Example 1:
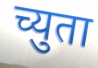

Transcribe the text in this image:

च्युता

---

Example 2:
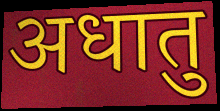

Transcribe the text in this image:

अधातु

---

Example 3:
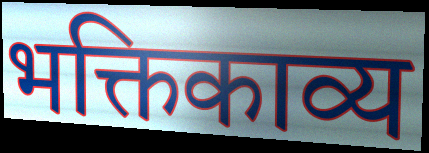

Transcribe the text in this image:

भक्तिकाव्य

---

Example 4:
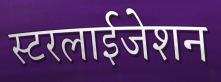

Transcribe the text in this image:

स्टरलाईजेशन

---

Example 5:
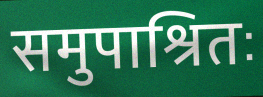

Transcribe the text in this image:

समुपाश्रितः